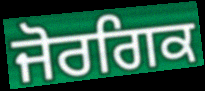
ਜੋਰਗਿਕ